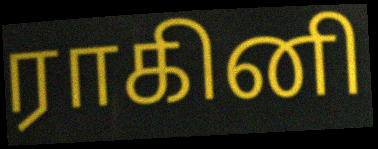
ராகினி